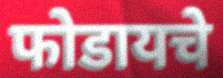
फोडायचे